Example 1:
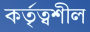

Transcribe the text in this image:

কর্তৃত্বশীল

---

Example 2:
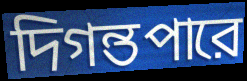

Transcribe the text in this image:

দিগন্তপারে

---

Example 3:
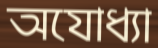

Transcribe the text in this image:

অযোধ্যা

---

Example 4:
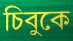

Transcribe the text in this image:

চিবুকে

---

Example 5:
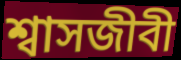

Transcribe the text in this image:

শ্বাসজীবী